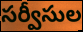
సర్వీసుల